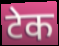
टेक